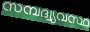
സമ്പദ്വ്യവസ്ഥ